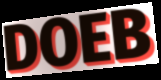
DOEB